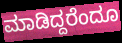
ಮಾಡಿದ್ದರೆಂದೂ